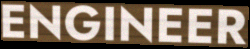
ENGINEER